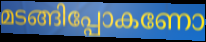
മടങ്ങിപ്പോകണോ